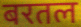
बरतल